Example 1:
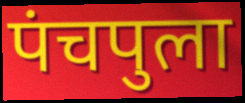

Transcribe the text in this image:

पंचपुला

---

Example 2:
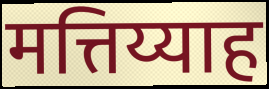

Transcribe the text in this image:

मत्तिय्याह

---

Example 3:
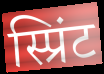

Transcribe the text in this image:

स्प्रिंट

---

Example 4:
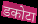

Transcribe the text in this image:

डकोटा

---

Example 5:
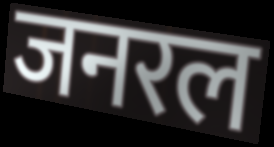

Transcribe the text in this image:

जनरल